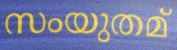
സംയുതമ്